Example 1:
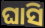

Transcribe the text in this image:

ଘାସି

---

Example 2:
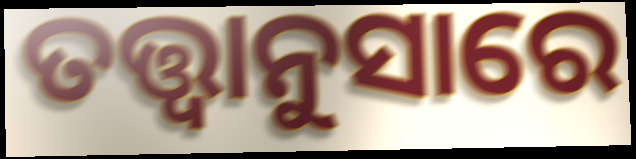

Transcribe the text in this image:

ତତ୍ତ୍ୱାନୁସାରେ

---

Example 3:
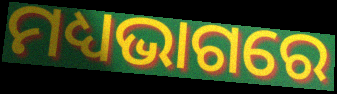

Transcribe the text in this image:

ମଧ୍ୟଭାଗରେ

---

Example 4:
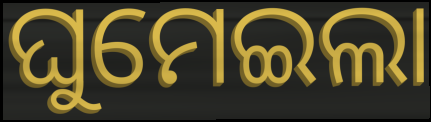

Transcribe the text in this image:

ଘୁମେଇଲା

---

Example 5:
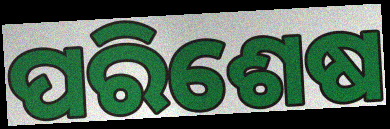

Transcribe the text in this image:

ପରିଶେଷ